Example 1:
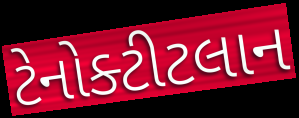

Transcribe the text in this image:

ટેનોક્ટીટલાન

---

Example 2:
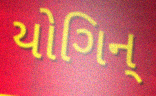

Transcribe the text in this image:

યોગિન્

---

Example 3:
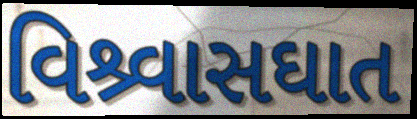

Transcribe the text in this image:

વિશ્ર્વાસઘાત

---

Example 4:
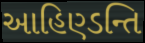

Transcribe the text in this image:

આહિણ્ડન્તિ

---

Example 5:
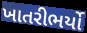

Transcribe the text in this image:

ખાતરીભર્યો